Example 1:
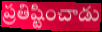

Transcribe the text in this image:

ప్రతిష్టించాడు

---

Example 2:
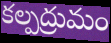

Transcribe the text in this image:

కల్పద్రుమం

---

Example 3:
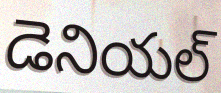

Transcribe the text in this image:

డెనియల్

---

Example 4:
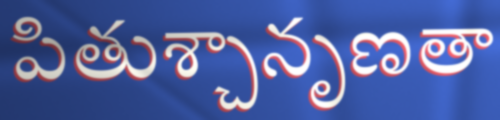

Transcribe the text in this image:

పితుశ్చానృణతా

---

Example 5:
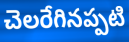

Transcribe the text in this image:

చెలరేగినప్పటి